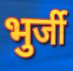
भुर्जी